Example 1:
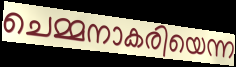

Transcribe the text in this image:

ചെമ്മനാകരിയെന്ന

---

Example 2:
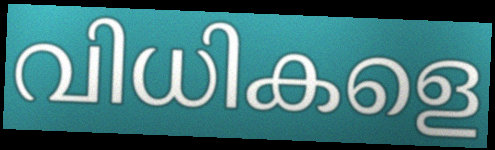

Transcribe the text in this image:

വിധികളെ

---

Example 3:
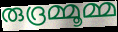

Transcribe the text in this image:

രുദ്രമ്മൂമ്മ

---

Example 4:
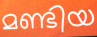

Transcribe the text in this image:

മണ്ടിയ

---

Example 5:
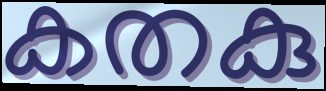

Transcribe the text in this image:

കതകു